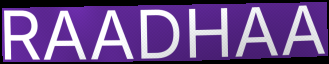
RAADHAA